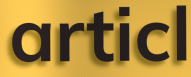
articl